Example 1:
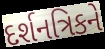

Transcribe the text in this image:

દર્શનત્રિકને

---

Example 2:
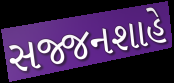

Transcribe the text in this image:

સજ્જનશાહે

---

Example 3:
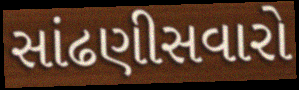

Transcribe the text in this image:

સાંઢણીસવારો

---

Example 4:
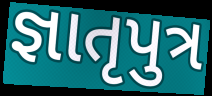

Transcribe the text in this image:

જ્ઞાતૃપુત્ર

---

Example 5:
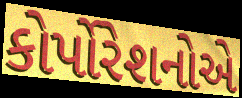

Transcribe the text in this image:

કોર્પોરેશનોએ